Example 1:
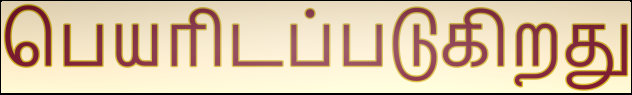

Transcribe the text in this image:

பெயரிடப்படுகிறது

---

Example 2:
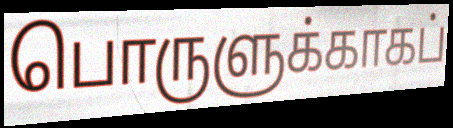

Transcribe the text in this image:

பொருளுக்காகப்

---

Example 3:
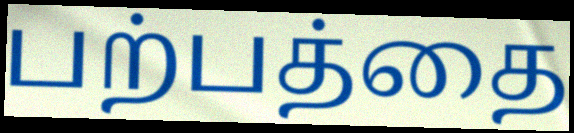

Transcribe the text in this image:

பற்பத்தை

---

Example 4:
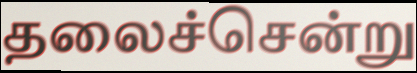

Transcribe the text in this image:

தலைச்சென்று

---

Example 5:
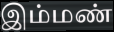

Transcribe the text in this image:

இம்மண்